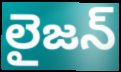
లైజన్